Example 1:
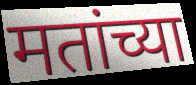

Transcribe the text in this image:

मतांच्या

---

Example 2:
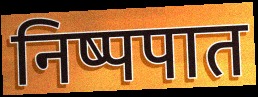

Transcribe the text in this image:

निष्पपात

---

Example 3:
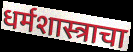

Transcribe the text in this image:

धर्मशास्त्राचा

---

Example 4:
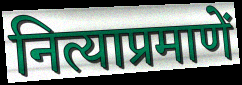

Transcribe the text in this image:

नित्याप्रमाणें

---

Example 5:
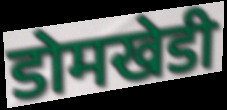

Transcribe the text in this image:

डोमखेडी